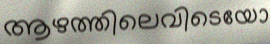
ആഴത്തിലെവിടെയോ